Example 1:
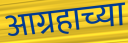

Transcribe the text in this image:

आग्रहाच्या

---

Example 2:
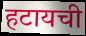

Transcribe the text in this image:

हटायची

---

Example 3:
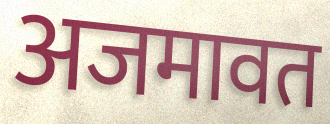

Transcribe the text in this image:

अजमावत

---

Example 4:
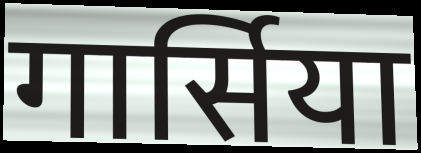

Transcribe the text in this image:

गार्सिया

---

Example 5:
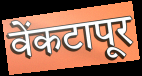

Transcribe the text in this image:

वेंकटापूर